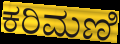
ಕರಿಮಣಿ